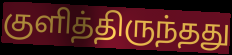
குளித்திருந்தது